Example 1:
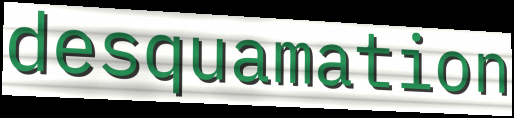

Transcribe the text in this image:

desquamation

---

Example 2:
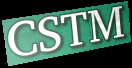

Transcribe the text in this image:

CSTM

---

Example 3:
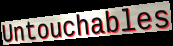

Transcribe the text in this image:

Untouchables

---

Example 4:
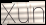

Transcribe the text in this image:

Xun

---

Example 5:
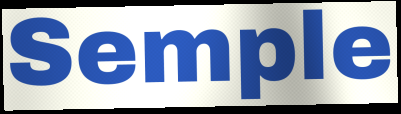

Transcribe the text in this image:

Semple